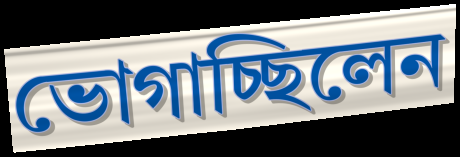
ভোগাচ্ছিলেন